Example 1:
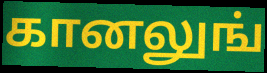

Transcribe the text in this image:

கானலுங்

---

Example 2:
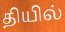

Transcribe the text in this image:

தியில்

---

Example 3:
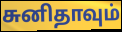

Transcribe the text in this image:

சுனிதாவும்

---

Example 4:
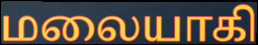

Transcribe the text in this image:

மலையாகி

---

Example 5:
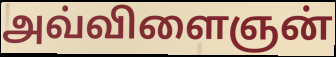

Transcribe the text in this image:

அவ்விளைஞன்